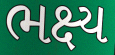
ભક્ષ્ય